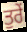
ਤੁਰੇਂ